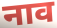
नाव